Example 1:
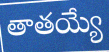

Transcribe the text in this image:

తాతయ్యే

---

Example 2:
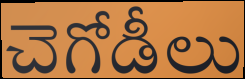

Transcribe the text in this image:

చెగోడీలు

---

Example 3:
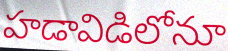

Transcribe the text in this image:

హడావిడిలోనూ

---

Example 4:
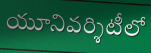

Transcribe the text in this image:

యూనివర్శిటీలో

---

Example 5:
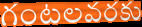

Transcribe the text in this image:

గంటలవరకు